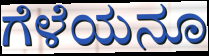
ಗೆಳೆಯನೂ